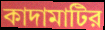
কাদামাটির